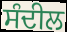
ਸੰਦੀਲ